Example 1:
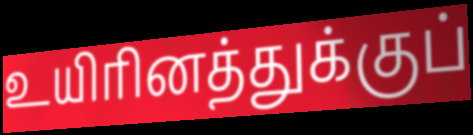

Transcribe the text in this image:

உயிரினத்துக்குப்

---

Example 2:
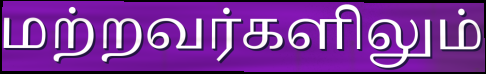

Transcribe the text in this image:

மற்றவர்களிலும்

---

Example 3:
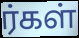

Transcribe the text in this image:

ர்கள்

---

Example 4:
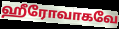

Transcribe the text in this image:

ஹீரோவாகவே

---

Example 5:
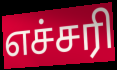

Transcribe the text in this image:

எச்சரி